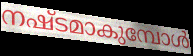
നഷ്ടമാകുമ്പോൾ